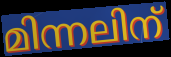
മിന്നലിന്